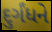
દુર્ગંધને